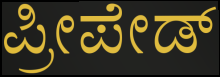
ಪ್ರೀಪೇಡ್